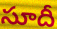
సూదీ